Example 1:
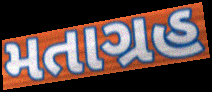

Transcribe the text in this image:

મતાગ્રહ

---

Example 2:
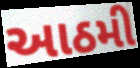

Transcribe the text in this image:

આઠમી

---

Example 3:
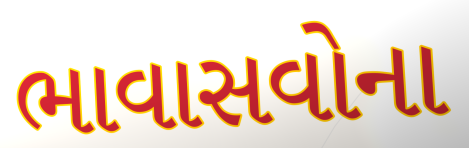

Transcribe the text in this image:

ભાવાસવોના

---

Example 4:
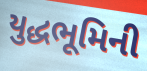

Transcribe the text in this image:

યુદ્ધભૂમિની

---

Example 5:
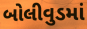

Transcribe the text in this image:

બોલીવુડમાં